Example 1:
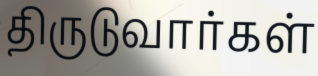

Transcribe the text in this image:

திருடுவார்கள்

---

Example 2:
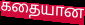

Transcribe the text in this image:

கதையான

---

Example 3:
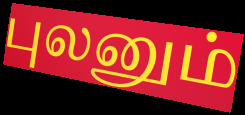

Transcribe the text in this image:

புலனும்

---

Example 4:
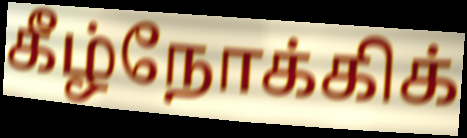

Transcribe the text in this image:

கீழ்நோக்கிக்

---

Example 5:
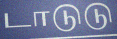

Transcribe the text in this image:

டாடுடு